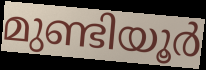
മുണ്ടിയൂർ